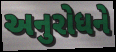
અનુરોધને